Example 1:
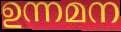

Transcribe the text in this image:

ഉന്നമന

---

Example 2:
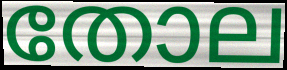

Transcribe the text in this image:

തോല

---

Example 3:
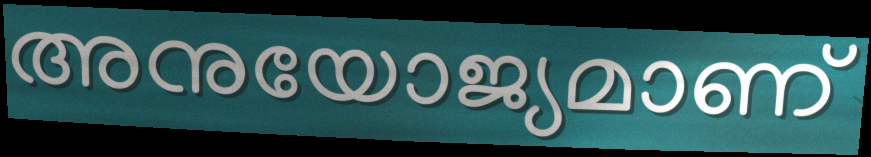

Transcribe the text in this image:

അനുയോജ്യമാണ്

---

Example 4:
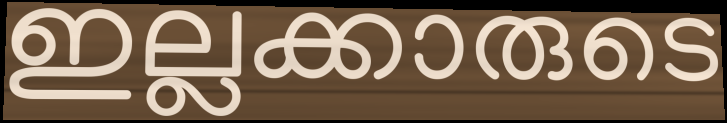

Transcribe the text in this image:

ഇല്ലക്കാരുടെ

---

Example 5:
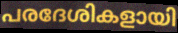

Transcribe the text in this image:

പരദേശികളായി